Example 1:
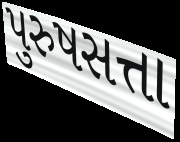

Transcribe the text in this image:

પુરુષસત્તા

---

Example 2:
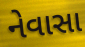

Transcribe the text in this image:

નેવાસા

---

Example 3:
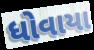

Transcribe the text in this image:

ધોવાયા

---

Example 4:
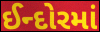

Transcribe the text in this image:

ઈન્દોરમાં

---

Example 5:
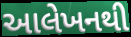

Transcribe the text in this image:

આલેખનથી